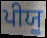
ਪੀਯੂ